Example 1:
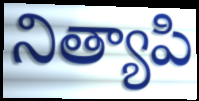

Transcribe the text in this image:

నిత్యాపి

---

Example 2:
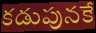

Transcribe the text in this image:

కడుపునకే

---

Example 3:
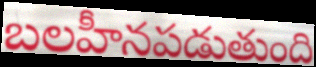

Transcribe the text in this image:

బలహీనపడుతుంది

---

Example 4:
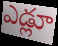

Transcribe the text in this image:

ఎడ్లూ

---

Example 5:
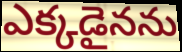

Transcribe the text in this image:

ఎక్కడైనను